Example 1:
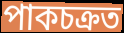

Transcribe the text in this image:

পাকচক্ৰত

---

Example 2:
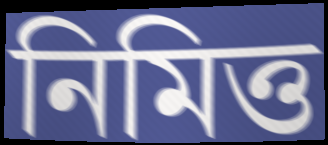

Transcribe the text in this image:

নিমিত্ত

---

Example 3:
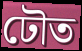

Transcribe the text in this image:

ঢৌত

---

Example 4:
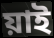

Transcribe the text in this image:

য়াই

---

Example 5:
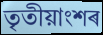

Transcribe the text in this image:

তৃতীয়াংশৰ